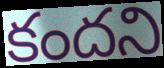
కందని